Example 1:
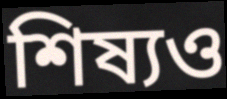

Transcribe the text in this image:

শিষ্যও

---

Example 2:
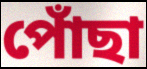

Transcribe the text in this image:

পোঁছা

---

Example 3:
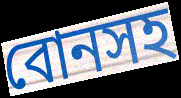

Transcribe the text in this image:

বোনসহ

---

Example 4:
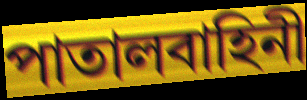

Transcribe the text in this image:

পাতালবাহিনী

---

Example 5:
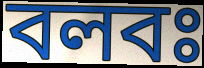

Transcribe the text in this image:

বলবঃ